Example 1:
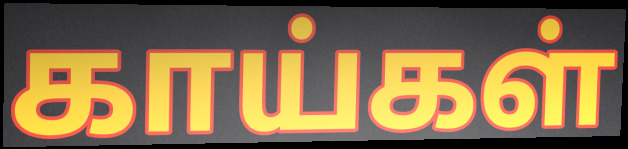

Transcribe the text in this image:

காய்கள்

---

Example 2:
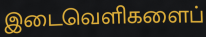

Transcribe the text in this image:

இடைவெளிகளைப்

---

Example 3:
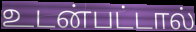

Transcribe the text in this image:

உடன்பட்டால்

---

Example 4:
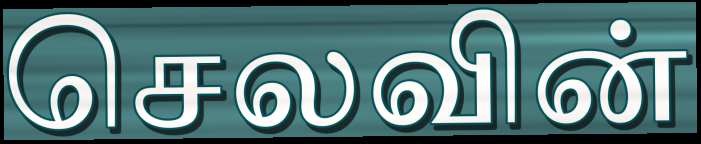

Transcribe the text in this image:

செலவின்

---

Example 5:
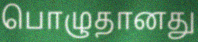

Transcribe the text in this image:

பொழுதானது